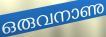
ഒരുവനാണു